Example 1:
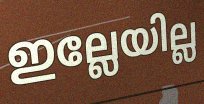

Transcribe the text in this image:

ഇല്ലേയില്ല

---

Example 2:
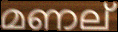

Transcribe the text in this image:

മണല്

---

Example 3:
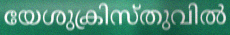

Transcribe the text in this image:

യേശുക്രിസ്തുവിൽ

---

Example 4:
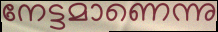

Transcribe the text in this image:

നേട്ടമാണെന്നു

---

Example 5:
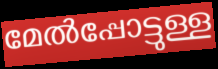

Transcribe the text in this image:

മേൽപ്പോട്ടുള്ള